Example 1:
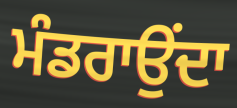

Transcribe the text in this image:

ਮੰਡਰਾਉਂਦਾ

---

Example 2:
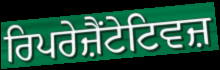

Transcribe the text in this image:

ਰਿਪਰੇਜ਼ੈਂਟੇਟਿਵਜ਼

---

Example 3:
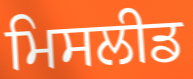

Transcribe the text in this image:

ਮਿਸਲੀਡ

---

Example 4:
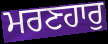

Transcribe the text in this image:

ਮਰਣਹਾਰੁ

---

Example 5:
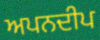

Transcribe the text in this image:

ਅਪਨਦੀਪ